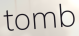
tomb